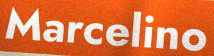
Marcelino